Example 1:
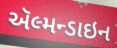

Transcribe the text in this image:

ઍલ્મન્ડાઇન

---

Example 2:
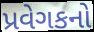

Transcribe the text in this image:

પ્રવેગકનો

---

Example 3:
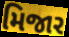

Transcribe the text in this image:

મિજાર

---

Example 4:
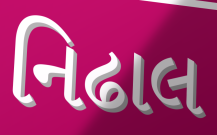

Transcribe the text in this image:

નિઢાલ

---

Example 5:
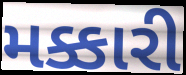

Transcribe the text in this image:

મક્કારી